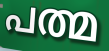
പത്മ